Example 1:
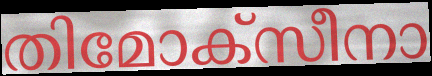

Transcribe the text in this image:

തിമോക്സീനാ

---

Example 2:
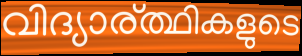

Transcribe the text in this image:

വിദ്യാര്ത്ഥികളുടെ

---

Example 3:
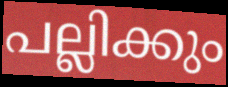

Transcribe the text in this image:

പല്ലിക്കും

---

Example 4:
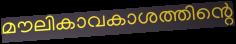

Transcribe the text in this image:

മൗലികാവകാശത്തിന്റെ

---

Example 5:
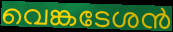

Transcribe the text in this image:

വെങ്കടേശൻ